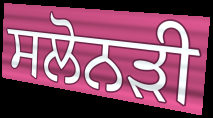
ਸਲੋਨੜੀ